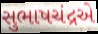
સુભાષચંદ્રએ